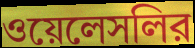
ওয়েলেসলির